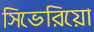
সিভেরিয়ো